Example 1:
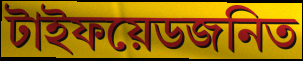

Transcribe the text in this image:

টাইফয়েডজনিত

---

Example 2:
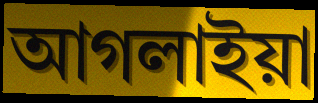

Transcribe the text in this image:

আগলাইয়া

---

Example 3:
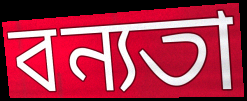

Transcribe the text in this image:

বন্যতা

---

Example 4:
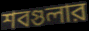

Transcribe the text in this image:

শবগুলার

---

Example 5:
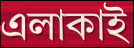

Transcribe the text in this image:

এলাকাই